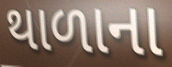
થાળાના